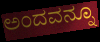
ಅಂದವನ್ನೂ